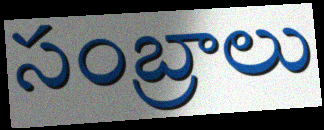
సంబ్రాలు